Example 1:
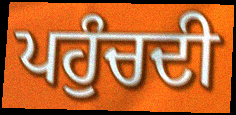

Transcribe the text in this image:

ਪਹੁੰਚਦੀ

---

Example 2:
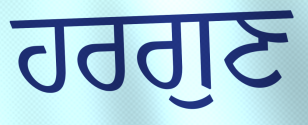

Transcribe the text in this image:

ਹਰਗੁਣ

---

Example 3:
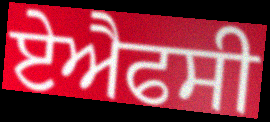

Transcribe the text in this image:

ਏਐਫਸੀ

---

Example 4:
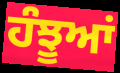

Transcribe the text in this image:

ਹੰਝੂਆਂ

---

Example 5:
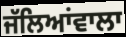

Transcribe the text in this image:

ਜੱਲਿਆਂਵਾਲਾ